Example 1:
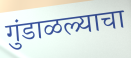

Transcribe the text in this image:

गुंडाळल्याचा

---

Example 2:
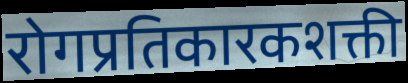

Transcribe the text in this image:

रोगप्रतिकारकशक्ती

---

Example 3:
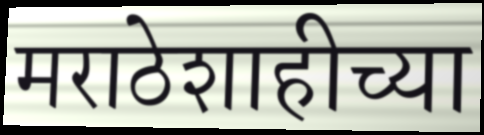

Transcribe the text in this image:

मराठेशाहीच्या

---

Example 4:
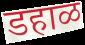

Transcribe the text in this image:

डहाळ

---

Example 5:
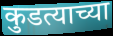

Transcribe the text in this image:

कुडत्याच्या